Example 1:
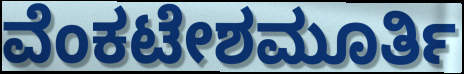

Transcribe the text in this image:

ವೆಂಕಟೇಶಮೂರ್ತಿ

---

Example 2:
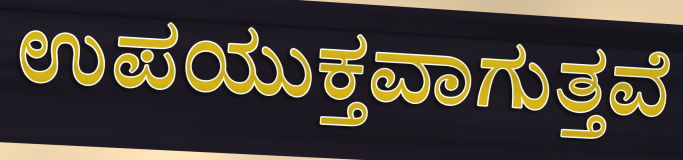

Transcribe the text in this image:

ಉಪಯುಕ್ತವಾಗುತ್ತವೆ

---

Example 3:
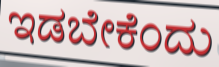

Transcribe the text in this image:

ಇಡಬೇಕೆಂದು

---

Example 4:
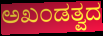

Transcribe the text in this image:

ಅಖಂಡತ್ವದ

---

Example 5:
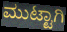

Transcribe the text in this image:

ಮುಟ್ಟಾಗಿ